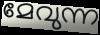
മേവുന്ന